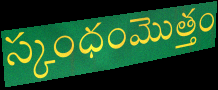
స్కంధంమొత్తం